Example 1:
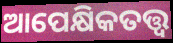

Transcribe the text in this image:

ଆପେକ୍ଷିକତତ୍ତ୍ୱ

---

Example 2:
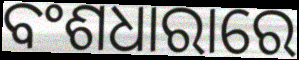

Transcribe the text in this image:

ବଂଶଧାରାରେ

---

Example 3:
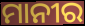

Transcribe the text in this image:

ମାନୀର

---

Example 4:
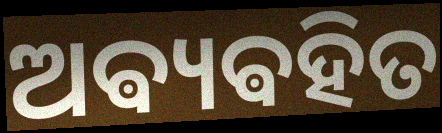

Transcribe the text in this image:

ଅଵ୍ୟଵହିତ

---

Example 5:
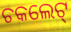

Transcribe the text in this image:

ଚକଲେଟ୍